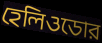
হেলিওডোর